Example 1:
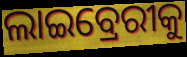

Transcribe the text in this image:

ଲାଇବ୍ରେରୀକୁ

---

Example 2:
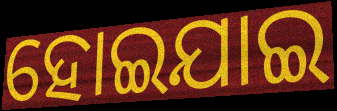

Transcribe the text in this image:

ହୋଇଯାଇ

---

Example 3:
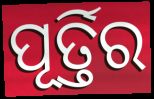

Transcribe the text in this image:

ପୂର୍ତ୍ତିର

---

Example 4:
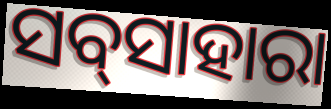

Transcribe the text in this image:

ସବ୍‌ସାହାରା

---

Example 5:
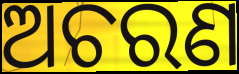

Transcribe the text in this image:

ଅଚରଣ